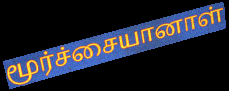
மூர்ச்சையானாள்